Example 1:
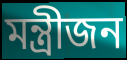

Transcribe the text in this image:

মন্ত্ৰীজন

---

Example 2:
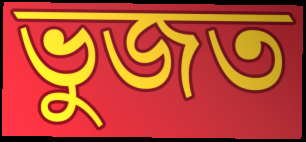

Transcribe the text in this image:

ভুজত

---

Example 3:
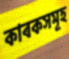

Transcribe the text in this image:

কাৰকসমূহ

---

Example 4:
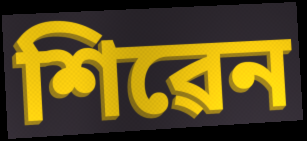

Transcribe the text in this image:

শিৱেন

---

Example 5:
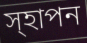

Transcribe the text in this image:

স্হাপন